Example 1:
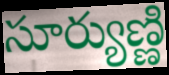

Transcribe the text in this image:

సూర్యుణ్ణి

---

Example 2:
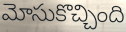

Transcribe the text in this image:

మోసుకొచ్చింది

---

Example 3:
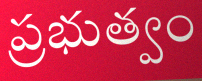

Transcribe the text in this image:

ప్రభుత్వం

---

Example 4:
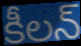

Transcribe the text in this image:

కీలన్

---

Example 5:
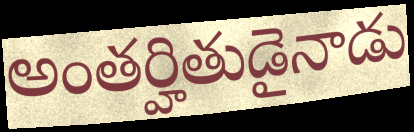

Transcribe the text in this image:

అంతర్హితుడైనాడు